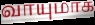
வாயுமாக